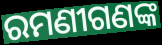
ରମଣୀଗଣଙ୍କ